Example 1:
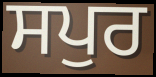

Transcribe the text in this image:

ਸਪੁਰ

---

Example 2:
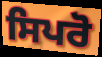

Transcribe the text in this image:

ਸਿਪਰੋ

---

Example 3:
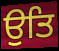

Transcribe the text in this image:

ਉਤਿ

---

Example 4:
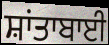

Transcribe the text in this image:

ਸ਼ਾਂਤਾਬਾਈ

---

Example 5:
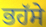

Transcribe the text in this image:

ਭਹੱਸੇ